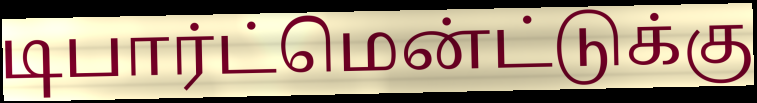
டிபார்ட்மென்ட்டுக்கு